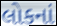
લોકનાં